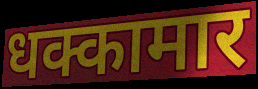
धक्कामार